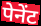
पेनेंट